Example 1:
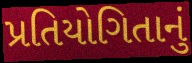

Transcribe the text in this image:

પ્રતિયોગિતાનું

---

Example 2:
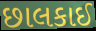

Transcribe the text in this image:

છાલકાઈ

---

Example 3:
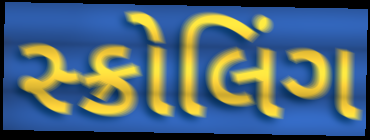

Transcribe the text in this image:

સ્ક્રોલિંગ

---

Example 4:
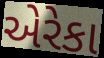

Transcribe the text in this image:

એરેકા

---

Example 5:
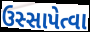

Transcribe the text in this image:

ઉસ્સાપેત્વા